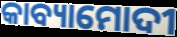
କାବ୍ୟାମୋଦୀ